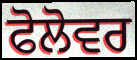
ਫੋਲੋਵਰ